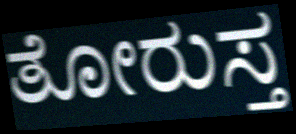
ತೋರುಸ್ತ